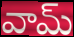
వామ్